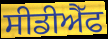
ਸੀਡੀਐੱਫ